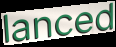
lanced